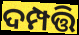
ଦମ୍ପତ୍ତି